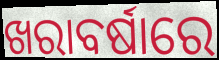
ଖରାବର୍ଷାରେ